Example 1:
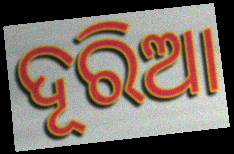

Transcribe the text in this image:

ଦୂରିଆ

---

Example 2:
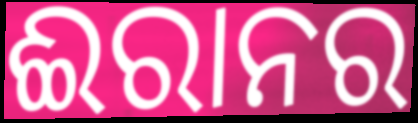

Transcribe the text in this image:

ଈରାନର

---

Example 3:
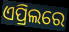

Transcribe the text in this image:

ଏପ୍ରିଲରେ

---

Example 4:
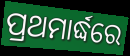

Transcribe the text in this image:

ପ୍ରଥମାର୍ଦ୍ଧରେ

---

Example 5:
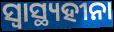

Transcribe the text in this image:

ସ୍ଵାସ୍ଥ୍ୟହୀନା